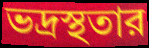
ভদ্রস্থতার